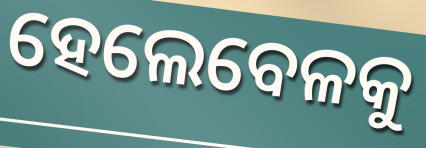
ହେଲେବେଳକୁ